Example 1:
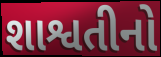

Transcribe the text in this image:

શાશ્વતીનો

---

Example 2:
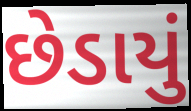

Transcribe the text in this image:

છેડાયું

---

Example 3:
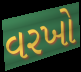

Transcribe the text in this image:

વરખો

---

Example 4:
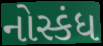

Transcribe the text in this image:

નોસ્કંધ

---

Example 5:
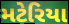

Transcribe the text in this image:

મટેરિયા